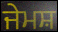
ਜੇਮਸ਼